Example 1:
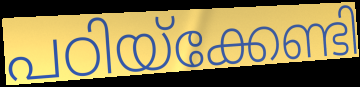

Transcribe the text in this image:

പഠിയ്ക്കേണ്ടി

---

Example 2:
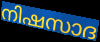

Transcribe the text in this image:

നിഷസാദ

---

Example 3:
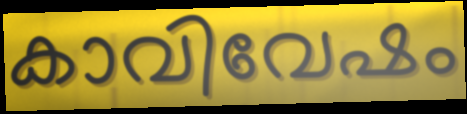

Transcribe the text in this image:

കാവിവേഷം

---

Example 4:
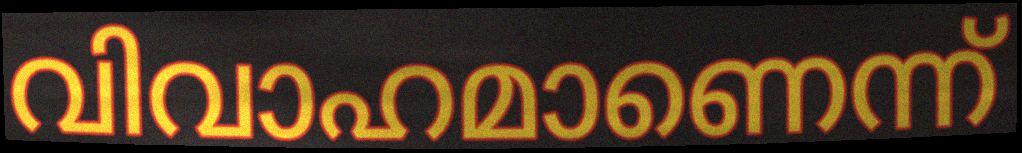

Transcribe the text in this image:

വിവാഹമാണെന്ന്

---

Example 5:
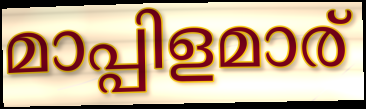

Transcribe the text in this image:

മാപ്പിളമാര്